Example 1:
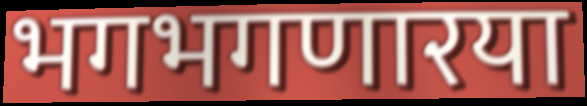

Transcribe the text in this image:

भगभगणारया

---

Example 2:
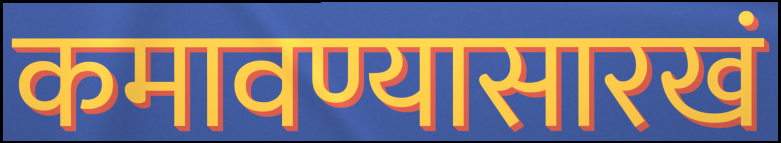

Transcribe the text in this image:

कमावण्यासारखं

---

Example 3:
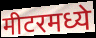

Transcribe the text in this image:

मीटरमध्ये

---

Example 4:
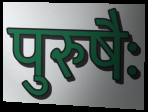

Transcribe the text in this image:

पुरुषैः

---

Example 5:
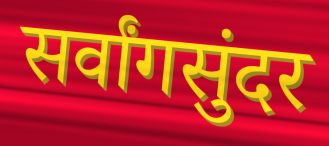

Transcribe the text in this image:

सर्वांगसुंदर